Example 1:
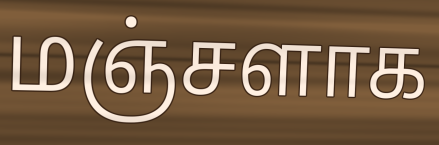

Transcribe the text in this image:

மஞ்சளாக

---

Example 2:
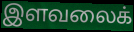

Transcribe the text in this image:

இளவலைக்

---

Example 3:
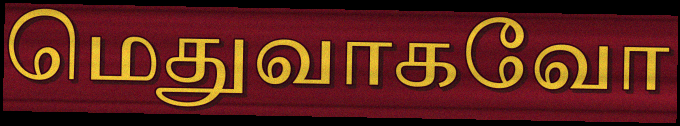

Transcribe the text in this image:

மெதுவாகவோ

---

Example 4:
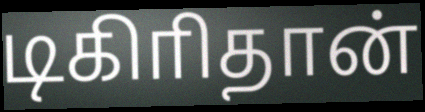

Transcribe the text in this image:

டிகிரிதான்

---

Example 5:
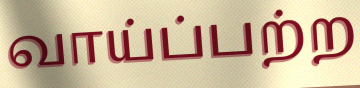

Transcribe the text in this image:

வாய்ப்பற்ற